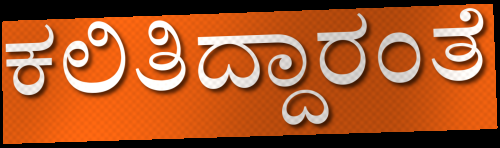
ಕಲಿತಿದ್ದಾರಂತೆ